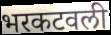
भरकटवली